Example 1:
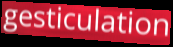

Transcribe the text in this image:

gesticulation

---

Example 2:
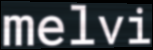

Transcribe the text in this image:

melvi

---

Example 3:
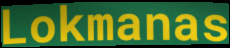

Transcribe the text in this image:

Lokmanas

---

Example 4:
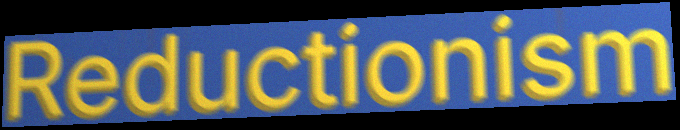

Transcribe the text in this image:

Reductionism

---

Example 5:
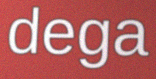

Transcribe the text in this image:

dega